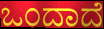
ಒಂದಾದೆ